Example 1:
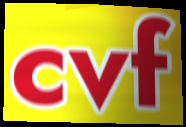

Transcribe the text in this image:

cvf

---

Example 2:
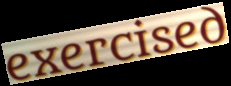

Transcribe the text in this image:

exercised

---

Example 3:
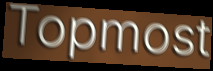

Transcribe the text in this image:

Topmost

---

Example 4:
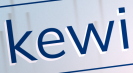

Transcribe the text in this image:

kewi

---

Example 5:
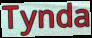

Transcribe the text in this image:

Tynda